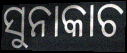
ସୁନାକାଚ